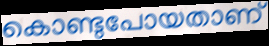
കൊണ്ടുപോയതാണ്